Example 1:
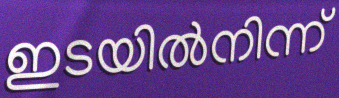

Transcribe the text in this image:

ഇടയിൽനിന്ന്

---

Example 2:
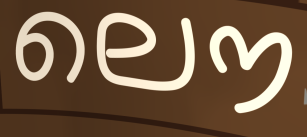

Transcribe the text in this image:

ലൌ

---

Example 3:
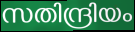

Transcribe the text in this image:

സതിന്ദ്രിയം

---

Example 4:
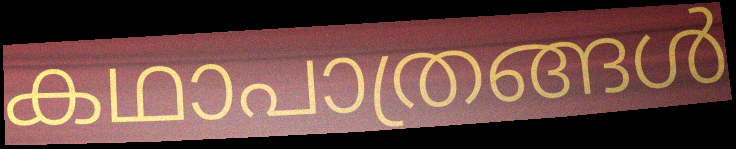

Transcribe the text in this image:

കഥാപാത്രങ്ങൾ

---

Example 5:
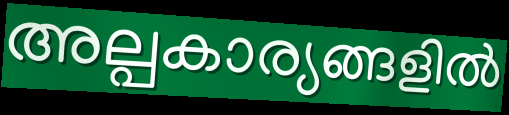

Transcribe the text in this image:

അല്പകാര്യങ്ങളിൽ